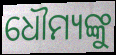
ଧୌମ୍ୟଙ୍କୁ